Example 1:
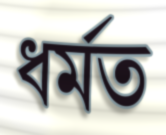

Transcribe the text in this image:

ধৰ্মত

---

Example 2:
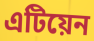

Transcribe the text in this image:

এটিয়েন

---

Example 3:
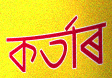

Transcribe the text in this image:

কৰ্তাৰ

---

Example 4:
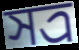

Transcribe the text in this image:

সত্ৰ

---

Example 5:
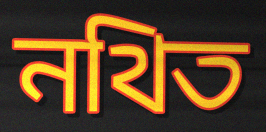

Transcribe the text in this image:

নথিত